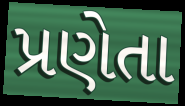
પ્રણેતા